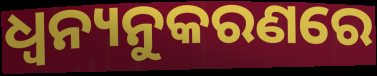
ଧ୍ଵନ୍ୟନୁକରଣରେ